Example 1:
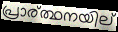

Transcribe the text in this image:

പ്രാര്ത്ഥനയില്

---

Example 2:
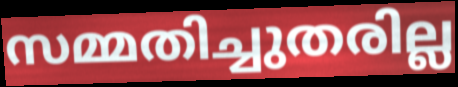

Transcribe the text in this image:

സമ്മതിച്ചുതരില്ല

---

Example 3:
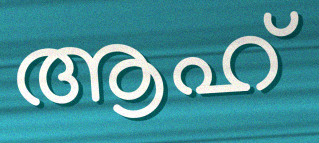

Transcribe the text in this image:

ആഹ്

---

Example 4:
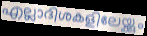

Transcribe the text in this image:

എല്ലാദിശകളിലേയ്ക്കും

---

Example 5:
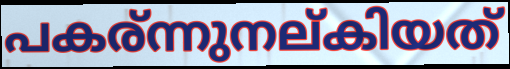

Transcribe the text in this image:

പകര്ന്നുനല്കിയത്